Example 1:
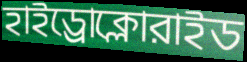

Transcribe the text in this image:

হাইড্রোক্লোরাইড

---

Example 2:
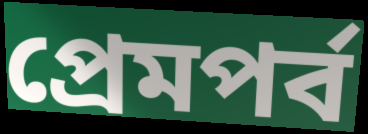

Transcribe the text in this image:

প্রেমপর্ব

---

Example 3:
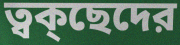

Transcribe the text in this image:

ত্বক্ছেদের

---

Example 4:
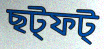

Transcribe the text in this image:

ছট্‌ফট্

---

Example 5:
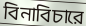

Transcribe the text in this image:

বিনাবিচারে